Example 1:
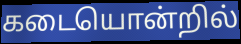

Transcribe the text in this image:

கடையொன்றில்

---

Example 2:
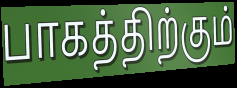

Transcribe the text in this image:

பாகத்திற்கும்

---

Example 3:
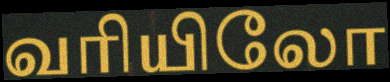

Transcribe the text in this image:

வரியிலோ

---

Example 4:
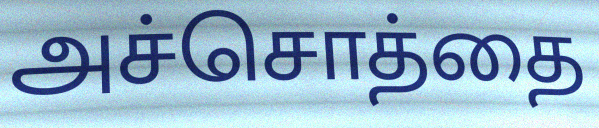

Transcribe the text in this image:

அச்சொத்தை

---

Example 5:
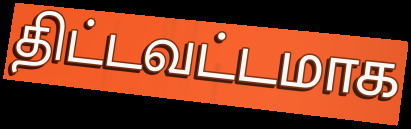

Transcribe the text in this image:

திட்டவட்டமாக